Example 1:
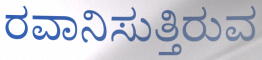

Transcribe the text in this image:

ರವಾನಿಸುತ್ತಿರುವ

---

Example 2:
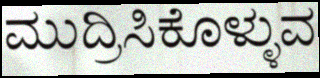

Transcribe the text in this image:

ಮುದ್ರಿಸಿಕೊಳ್ಳುವ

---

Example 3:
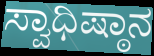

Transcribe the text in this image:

ಸ್ವಾಧಿಷ್ಠಾನ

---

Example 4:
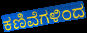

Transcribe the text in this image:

ಕಣಿವೆಗಳಿಂದ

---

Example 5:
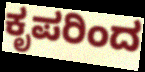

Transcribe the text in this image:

ಕೃಪರಿಂದ